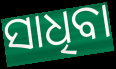
ସାଧିବା